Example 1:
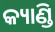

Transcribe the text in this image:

କ୍ୟାଣ୍ଡି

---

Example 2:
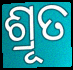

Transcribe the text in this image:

ଶ୍ରୂତ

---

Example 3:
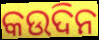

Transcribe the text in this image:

କଉଦିନ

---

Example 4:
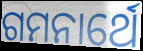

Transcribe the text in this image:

ଗମନାର୍ଥେ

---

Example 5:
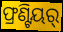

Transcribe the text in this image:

ଫ୍ରଣ୍ଟିୟର୍